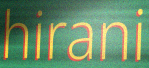
hirani